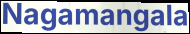
Nagamangala